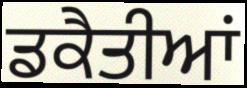
ਡਕੈਤੀਆਂ